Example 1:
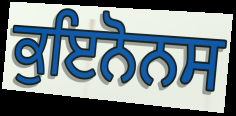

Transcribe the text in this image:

ਕੁਇਨੋਨਸ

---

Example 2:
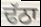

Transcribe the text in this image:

ਢੱਠਾ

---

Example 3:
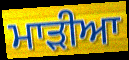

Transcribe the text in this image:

ਮਾੜੀਆ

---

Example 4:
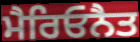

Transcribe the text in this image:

ਮੈਰਿਓਨੈਤ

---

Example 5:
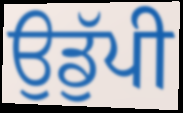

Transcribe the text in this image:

ਉਡੁੱਪੀ